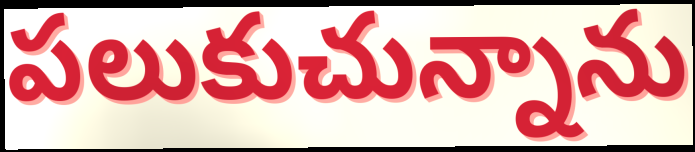
పలుకుచున్నాను